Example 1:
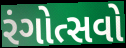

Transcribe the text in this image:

રંગોત્સવો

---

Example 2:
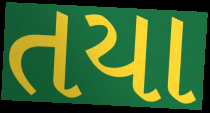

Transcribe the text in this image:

તયા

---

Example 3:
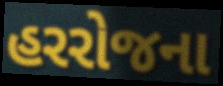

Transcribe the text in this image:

હરરોજના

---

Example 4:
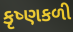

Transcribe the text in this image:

કૃષ્ણકળી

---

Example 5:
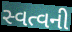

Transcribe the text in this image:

સ્વત્વની